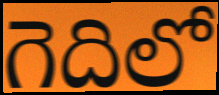
గెదిలో